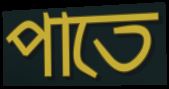
পাতে